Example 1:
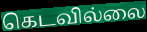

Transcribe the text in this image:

கெடவில்லை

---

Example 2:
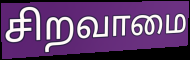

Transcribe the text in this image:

சிறவாமை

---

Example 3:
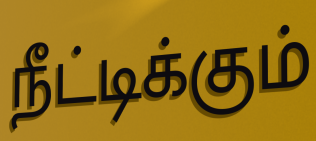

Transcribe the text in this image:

நீட்டிக்கும்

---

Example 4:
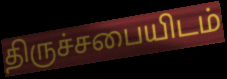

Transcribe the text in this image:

திருச்சபையிடம்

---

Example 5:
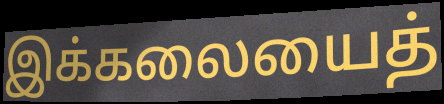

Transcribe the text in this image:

இக்கலையைத்